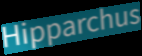
Hipparchus